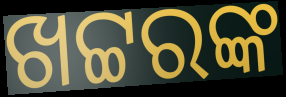
ଖଟ୍ଟରଙ୍କ